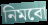
নিমবো